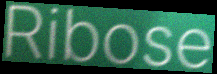
Ribose